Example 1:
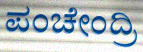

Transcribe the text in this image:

ಪಂಚೇಂದ್ರಿ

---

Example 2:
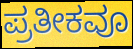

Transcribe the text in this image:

ಪ್ರತೀಕವೂ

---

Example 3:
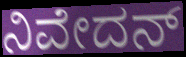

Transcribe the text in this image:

ನಿವೇದನ್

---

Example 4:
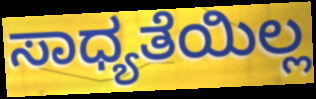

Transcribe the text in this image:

ಸಾಧ್ಯತೆಯಿಲ್ಲ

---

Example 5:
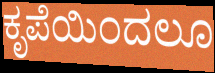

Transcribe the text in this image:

ಕೃಪೆಯಿಂದಲೂ